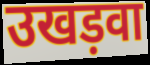
उखड़वा